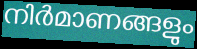
നിർമാണങ്ങളും